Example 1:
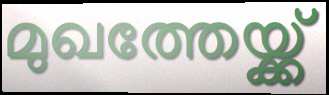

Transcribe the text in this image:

മുഖത്തേയ്ക്ക്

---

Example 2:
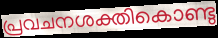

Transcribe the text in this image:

പ്രവചനശക്തികൊണ്ടു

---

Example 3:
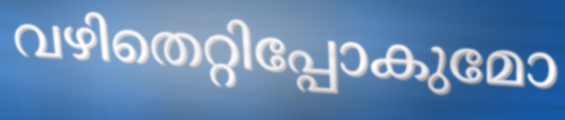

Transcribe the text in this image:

വഴിതെറ്റിപ്പോകുമോ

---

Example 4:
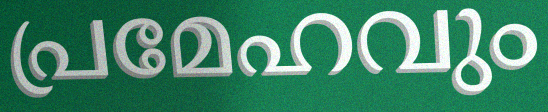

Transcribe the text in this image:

പ്രമേഹവും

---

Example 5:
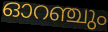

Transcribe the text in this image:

ഓറഞ്ചും